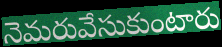
నెమరువేసుకుంటారు